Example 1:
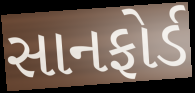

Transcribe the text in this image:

સાનફોર્ડ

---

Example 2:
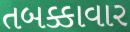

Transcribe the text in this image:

તબક્કાવાર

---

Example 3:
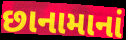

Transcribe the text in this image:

છાનામાનાં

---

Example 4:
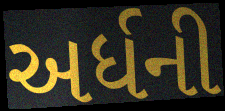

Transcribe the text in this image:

અર્ધની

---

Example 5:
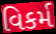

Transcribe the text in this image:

વિકર્મ